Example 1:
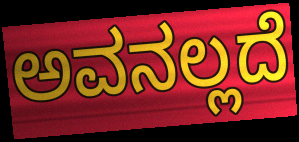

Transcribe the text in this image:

ಅವನಲ್ಲದೆ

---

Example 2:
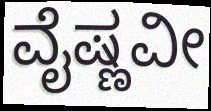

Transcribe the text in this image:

ವೈಷ್ಣವೀ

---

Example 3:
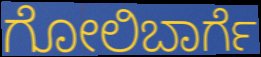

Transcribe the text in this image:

ಗೋಲಿಬಾರ್ಗೆ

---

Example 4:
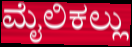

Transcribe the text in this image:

ಮೈಲಿಕಲ್ಲು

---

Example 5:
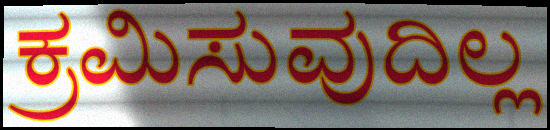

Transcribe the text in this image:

ಕ್ರಮಿಸುವುದಿಲ್ಲ